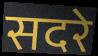
सदरे